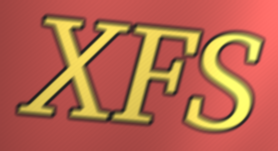
XFS